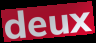
deux